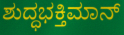
ಶುದ್ಧಭಕ್ತಿಮಾನ್